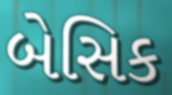
બેસિક